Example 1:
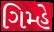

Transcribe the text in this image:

ગિમ્હે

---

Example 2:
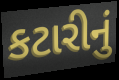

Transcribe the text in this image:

કટારીનું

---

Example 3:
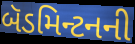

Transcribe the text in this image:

બૅડમિન્ટનની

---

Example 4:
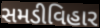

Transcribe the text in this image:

સમડીવિહાર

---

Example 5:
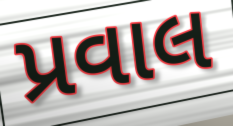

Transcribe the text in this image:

પ્રવાલ